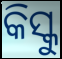
କିସ୍କୁ